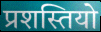
प्रशस्तियो